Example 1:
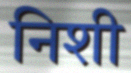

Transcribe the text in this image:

निशी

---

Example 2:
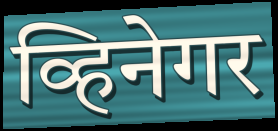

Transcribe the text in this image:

व्हिनेगर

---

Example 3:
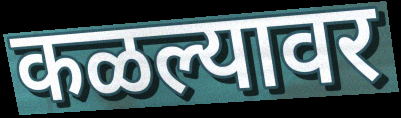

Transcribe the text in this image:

कळल्यावर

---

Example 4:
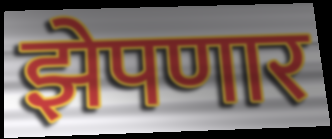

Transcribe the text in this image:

झेपणार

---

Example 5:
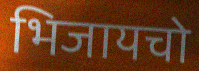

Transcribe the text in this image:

भिजायचो